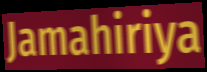
Jamahiriya